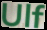
Ulf